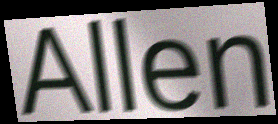
Allen